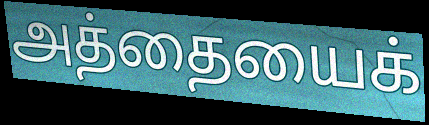
அத்தையைக்